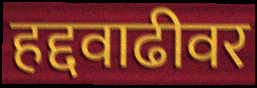
हद्दवाढीवर